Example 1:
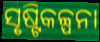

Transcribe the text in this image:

ସୃଷ୍ଟିକଳ୍ପନା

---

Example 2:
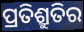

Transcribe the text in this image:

ପ୍ରତିଶ୍ରୁତିର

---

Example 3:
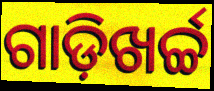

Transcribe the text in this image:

ଗାଡ଼ିଖର୍ଚ୍ଚ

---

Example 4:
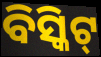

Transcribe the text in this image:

ବିସ୍କିଟ୍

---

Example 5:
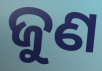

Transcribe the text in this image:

ଜୁଣ